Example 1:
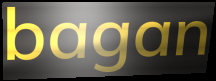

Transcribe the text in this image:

bagan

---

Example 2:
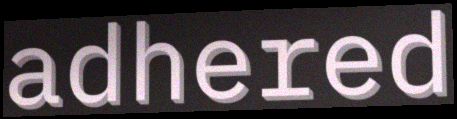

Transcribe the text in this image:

adhered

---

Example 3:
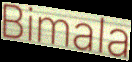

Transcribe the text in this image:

Bimala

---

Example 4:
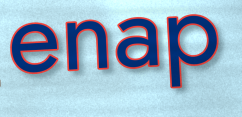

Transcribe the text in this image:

enap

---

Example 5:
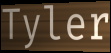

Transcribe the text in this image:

Tyler